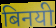
बिनयी